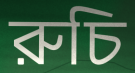
ৰুচি